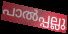
പാൽപ്പല്ലു